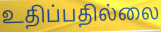
உதிப்பதில்லை